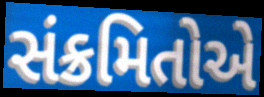
સંક્રમિતોએ